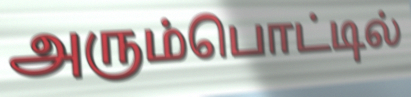
அரும்பொட்டில்